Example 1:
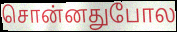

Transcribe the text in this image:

சொன்னதுபோல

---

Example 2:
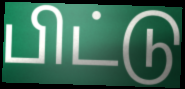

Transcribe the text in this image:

பிட்டு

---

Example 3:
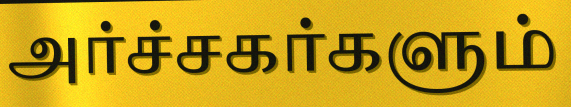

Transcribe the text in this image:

அர்ச்சகர்களும்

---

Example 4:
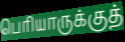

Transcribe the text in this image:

பெரியாருக்குத்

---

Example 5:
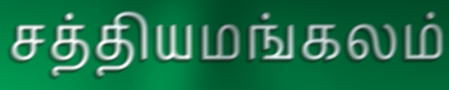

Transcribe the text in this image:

சத்தியமங்கலம்